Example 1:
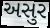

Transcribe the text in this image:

અસુર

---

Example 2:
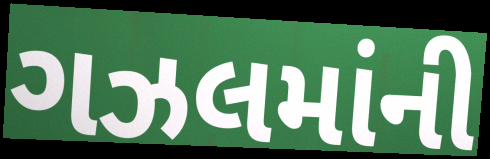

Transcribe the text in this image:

ગઝલમાંની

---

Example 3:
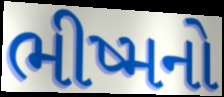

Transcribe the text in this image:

ભીષ્મનો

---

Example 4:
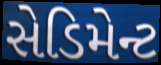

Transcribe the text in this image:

સેડિમેન્ટ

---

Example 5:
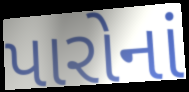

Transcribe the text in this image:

પારોનાં